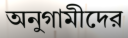
অনুগামীদের